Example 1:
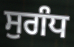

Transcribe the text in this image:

ਸੁਗੰਧ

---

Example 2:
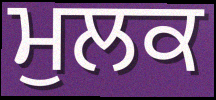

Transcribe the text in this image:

ਮੁਲਕ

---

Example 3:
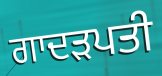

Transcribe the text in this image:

ਗਾਦੜਪਤੀ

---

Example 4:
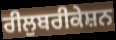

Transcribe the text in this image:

ਰੀਲੁਬਰੀਕੇਸ਼ਨ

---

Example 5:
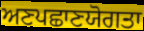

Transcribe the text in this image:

ਅਣਪਛਾਣਯੋਗਤਾ